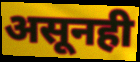
असूनही